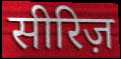
सीरिज़